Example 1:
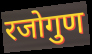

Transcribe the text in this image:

रजोगुण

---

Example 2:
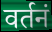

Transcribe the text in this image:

वर्तनं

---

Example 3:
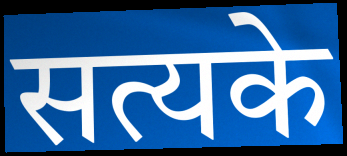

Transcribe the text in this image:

सत्यके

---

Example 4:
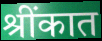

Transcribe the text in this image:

श्रींकात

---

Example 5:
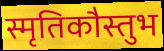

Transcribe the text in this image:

स्मृतिकौस्तुभ